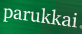
parukkai